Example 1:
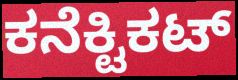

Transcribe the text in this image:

ಕನೆಕ್ಟಿಕಟ್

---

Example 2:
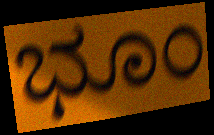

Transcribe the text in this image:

ಭೂಂ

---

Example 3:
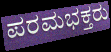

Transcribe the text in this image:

ಪರಮಭಕ್ತರು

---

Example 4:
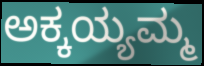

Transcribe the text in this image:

ಅಕ್ಕಯ್ಯಮ್ಮ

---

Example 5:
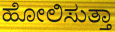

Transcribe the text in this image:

ಹೋಲಿಸುತ್ತಾ